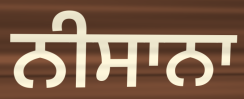
ਨੀਸਾਨਾ